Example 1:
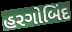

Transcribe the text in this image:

હરગોબિંદ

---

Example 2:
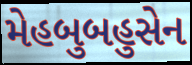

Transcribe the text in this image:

મેહબુબહુસેન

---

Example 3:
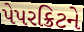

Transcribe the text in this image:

પેપરક્રિટને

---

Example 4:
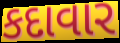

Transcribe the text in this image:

કદાવાર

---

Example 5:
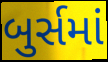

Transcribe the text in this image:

બુર્સમાં